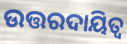
ଉତ୍ତରଦାୟିତ୍ଵ